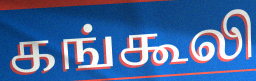
கங்கூலி